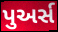
પુઅર્સ